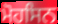
ਮੋਹਸਿਨ